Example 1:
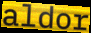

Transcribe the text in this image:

aldor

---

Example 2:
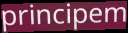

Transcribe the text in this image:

principem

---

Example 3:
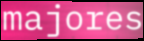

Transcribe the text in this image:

majores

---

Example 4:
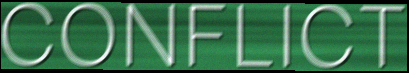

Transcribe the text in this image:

CONFLICT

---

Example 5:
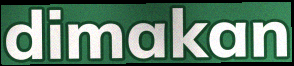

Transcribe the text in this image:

dimakan